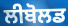
ਲੀਬੋਲਡ